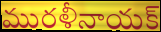
మురళీనాయక్